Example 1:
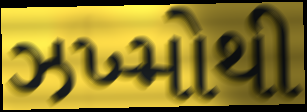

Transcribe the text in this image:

ઝખ્મોથી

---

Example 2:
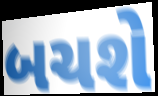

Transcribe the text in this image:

બચશે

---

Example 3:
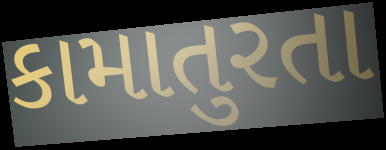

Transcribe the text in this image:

કામાતુરતા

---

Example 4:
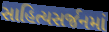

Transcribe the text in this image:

સાહિત્યસર્જનમાં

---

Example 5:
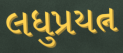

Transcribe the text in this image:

લધુપ્રયત્ન